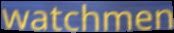
watchmen